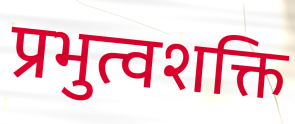
प्रभुत्वशक्ति